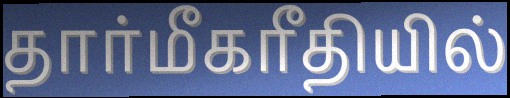
தார்மீகரீதியில்